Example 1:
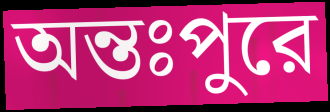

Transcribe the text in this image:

অন্তঃপুরে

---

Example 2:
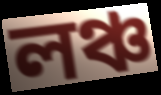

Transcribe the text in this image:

লঞ্চ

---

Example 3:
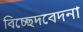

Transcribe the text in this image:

বিচ্ছেদবেদনা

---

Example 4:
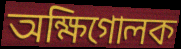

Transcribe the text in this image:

অক্ষিগোলক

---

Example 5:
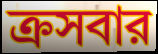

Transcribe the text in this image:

ক্রসবার